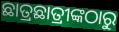
ଛାତ୍ରଛାତ୍ରୀଙ୍କଠାରୁ